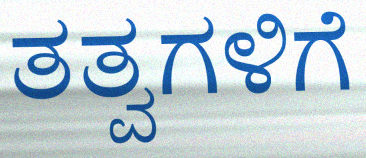
ತತ್ವಗಳಿಗೆ